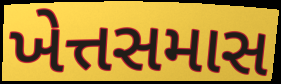
ખેત્તસમાસ